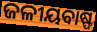
ଜଳୀୟବାଷ୍ଫ